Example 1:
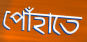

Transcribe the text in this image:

পোঁহাতে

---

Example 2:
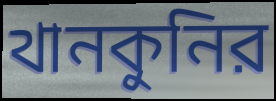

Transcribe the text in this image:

থানকুনির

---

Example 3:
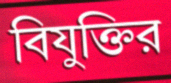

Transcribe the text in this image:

বিযুক্তির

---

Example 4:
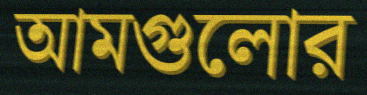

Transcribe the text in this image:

আমগুলোর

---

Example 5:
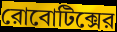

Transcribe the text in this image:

রোবোটিক্সের